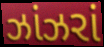
ઝાંઝરાં